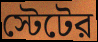
স্টেটের